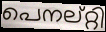
പെനല്റ്റി